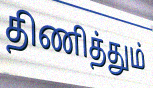
திணித்தும்